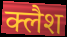
क्लैश